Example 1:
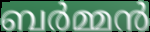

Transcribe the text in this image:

ബർമ്മൻ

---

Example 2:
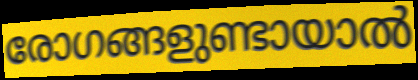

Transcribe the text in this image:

രോഗങ്ങളുണ്ടായാൽ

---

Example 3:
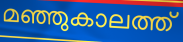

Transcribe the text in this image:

മഞ്ഞുകാലത്ത്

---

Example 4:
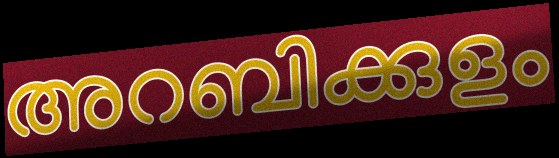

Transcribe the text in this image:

അറബിക്കുളം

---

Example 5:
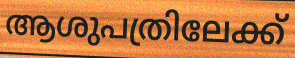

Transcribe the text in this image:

ആശുപത്രിലേക്ക്